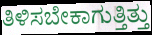
ತಿಳಿಸಬೇಕಾಗುತ್ತಿತ್ತು